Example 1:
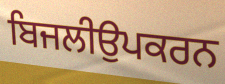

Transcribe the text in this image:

ਬਿਜਲੀਉਪਕਰਨ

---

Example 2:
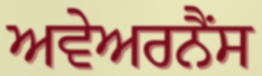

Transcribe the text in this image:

ਅਵੇਅਰਨੈਂਸ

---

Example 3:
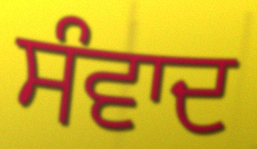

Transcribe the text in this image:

ਸੰਵਾਦ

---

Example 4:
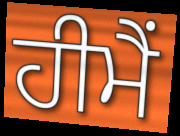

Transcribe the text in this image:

ਹੀਮੈਂ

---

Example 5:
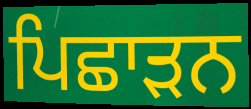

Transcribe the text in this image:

ਪਿਛਾੜਨ